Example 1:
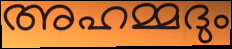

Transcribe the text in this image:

അഹമ്മദും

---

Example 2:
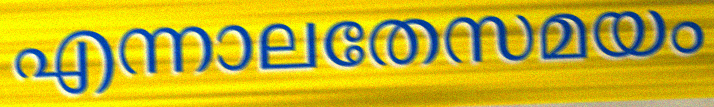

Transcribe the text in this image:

എന്നാലതേസമയം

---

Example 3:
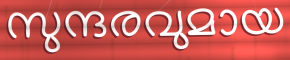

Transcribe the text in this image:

സുന്ദരവുമായ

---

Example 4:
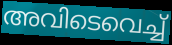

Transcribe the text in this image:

അവിടെവെച്ച്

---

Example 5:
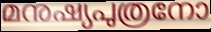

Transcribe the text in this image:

മനുഷ്യപുത്രനോ